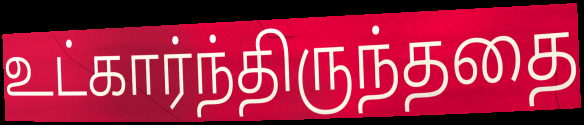
உட்கார்ந்திருந்ததை